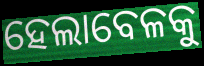
ହେଲାବେଳକୁ